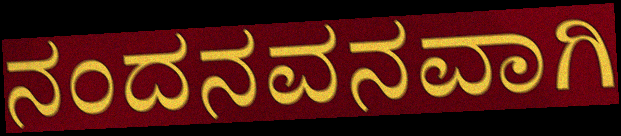
ನಂದನವನವಾಗಿ